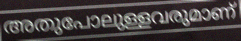
അതുപോലുള്ളവരുമാണ്